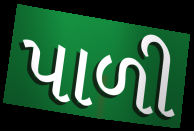
પાળી